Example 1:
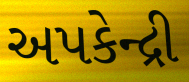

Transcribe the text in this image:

અપકેન્દ્રી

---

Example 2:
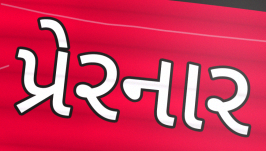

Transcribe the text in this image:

પ્રેરનાર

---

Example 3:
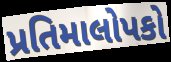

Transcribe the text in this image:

પ્રતિમાલોપકો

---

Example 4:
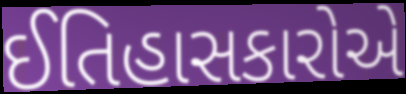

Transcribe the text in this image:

ઈતિહાસકારોએ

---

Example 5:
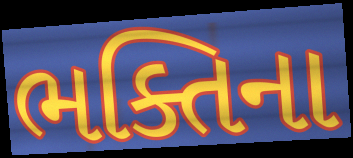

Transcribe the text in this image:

ભક્તિના